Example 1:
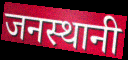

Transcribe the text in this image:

जनस्थानी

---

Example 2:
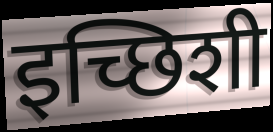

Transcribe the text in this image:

इच्छिशी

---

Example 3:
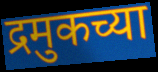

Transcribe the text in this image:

द्रमुकच्या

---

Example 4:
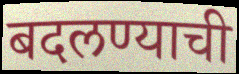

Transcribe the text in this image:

बदलण्याची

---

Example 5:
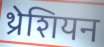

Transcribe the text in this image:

थ्रेशियन